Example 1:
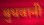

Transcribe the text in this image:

बुधवानी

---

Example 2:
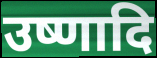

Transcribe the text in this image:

उष्णादि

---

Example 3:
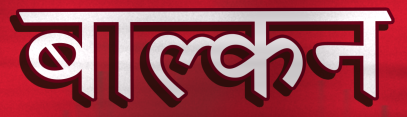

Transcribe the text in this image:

बाल्कन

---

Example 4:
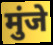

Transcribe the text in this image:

मुंजे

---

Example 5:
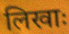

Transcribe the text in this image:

लिखाः